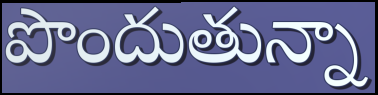
పొందుతున్నా